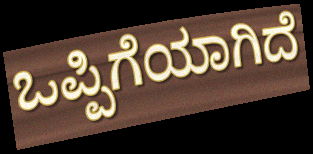
ಒಪ್ಪಿಗೆಯಾಗಿದೆ